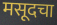
मसूदचा